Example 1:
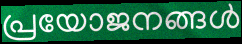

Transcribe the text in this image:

പ്രയോജനങ്ങൾ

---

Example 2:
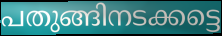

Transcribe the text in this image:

പതുങ്ങിനടക്കട്ടെ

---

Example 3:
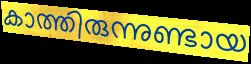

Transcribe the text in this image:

കാത്തിരുന്നുണ്ടായ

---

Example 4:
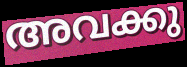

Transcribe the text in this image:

അവക്കു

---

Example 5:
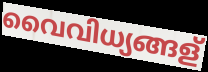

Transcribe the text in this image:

വൈവിധ്യങ്ങള്